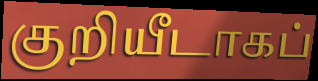
குறியீடாகப்